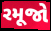
રમૂજો